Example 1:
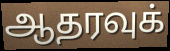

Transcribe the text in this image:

ஆதரவுக்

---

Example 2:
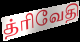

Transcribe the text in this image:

த்ரிவேதி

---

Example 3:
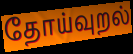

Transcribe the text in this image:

தோய்வுறல்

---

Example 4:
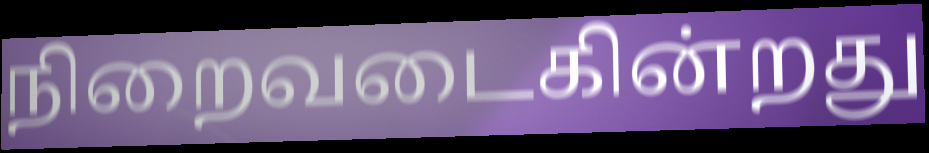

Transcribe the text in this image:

நிறைவடைகின்றது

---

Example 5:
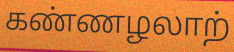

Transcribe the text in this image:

கண்ணழலாற்